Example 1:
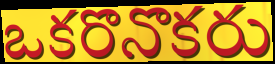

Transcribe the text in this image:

ఒకరొనొకరు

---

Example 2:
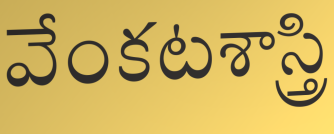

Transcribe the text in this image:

వేంకటశాస్త్రి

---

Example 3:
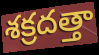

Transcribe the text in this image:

శక్రదత్తా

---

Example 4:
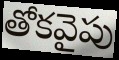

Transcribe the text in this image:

తోకవైపు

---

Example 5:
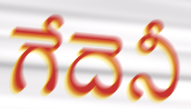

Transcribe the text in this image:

గేదెనీ